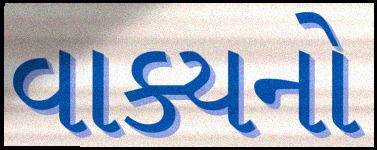
વાક્યનો